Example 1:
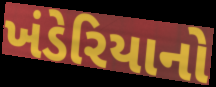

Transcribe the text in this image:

ખંડેરિયાનો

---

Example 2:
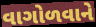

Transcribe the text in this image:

વાગોળવાને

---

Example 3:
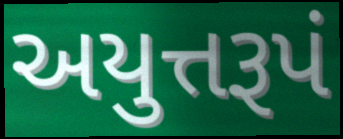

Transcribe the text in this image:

અયુત્તરૂપં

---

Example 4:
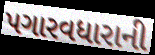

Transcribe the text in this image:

પગારવધારાની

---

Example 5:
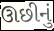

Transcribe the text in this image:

ઊછીનું